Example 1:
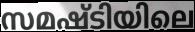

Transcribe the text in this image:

സമഷ്ടിയിലെ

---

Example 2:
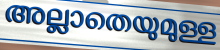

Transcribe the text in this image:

അല്ലാതെയുമുള്ള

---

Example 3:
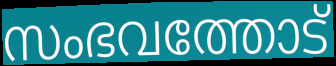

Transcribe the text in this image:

സംഭവത്തോട്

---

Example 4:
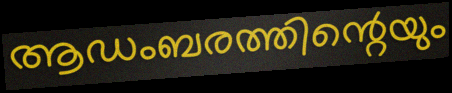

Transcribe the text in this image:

ആഡംബരത്തിന്റെയും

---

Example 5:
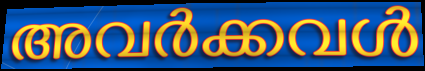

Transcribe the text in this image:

അവർക്കവൾ